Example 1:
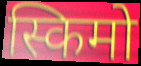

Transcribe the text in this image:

स्किमो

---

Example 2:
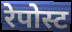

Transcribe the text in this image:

रेपोस्ट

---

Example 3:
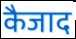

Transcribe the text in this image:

कैजाद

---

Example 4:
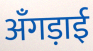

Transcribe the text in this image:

अँगड़ाई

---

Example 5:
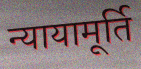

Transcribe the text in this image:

न्यायामूर्ति